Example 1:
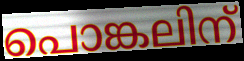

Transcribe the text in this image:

പൊങ്കലിന്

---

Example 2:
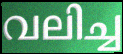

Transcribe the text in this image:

വലിച്ച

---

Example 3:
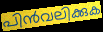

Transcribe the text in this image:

പിൻവലിക്കുക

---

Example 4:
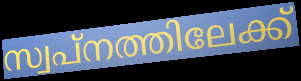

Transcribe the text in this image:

സ്വപ്നത്തിലേക്ക്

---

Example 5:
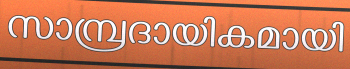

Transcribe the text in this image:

സാമ്പ്രദായികമായി